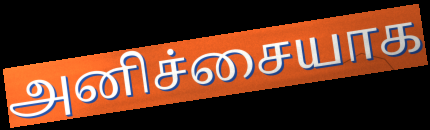
அனிச்சையாக